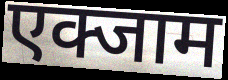
एक्जाम